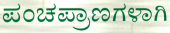
ಪಂಚಪ್ರಾಣಗಳಾಗಿ